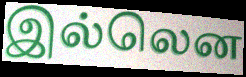
இல்லென